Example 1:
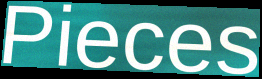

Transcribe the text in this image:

Pieces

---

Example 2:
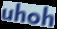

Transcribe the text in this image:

uhoh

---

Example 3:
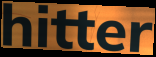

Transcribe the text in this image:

hitter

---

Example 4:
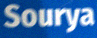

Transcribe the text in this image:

Sourya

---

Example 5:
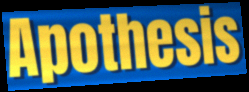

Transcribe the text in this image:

Apothesis